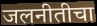
जलनीतीचा